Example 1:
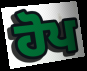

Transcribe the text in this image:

ਹੋਪ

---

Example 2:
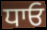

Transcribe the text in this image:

ਧਾਓ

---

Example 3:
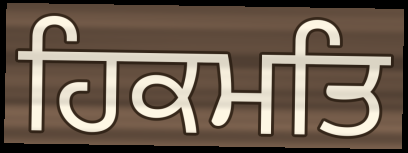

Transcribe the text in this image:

ਹਿਕਮਤਿ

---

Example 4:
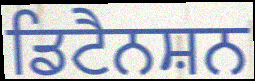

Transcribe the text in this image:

ਡਿਟੈਨਸ਼ਨ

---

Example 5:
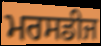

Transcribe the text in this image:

ਮਰਸਡੀਜ